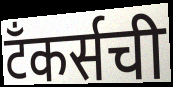
टँकर्सची